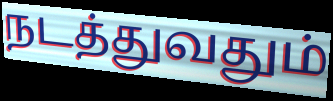
நடத்துவதும்